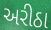
અરીઠા